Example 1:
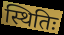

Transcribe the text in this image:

स्थितिः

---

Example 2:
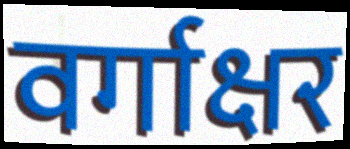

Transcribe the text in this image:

वर्गाक्षर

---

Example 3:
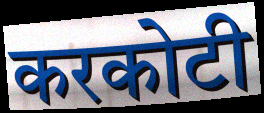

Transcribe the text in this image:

करकोटी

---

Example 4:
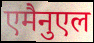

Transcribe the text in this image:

एमैनुएल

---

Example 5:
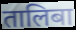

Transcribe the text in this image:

तालिबा